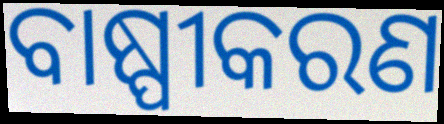
ବାଷ୍ପୀକରଣ